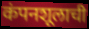
कंपनशूलाची